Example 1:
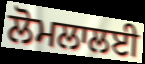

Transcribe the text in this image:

ਲੋਮਲਾਲਈ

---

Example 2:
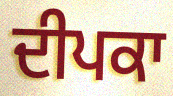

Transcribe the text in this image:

ਦੀਪਕਾ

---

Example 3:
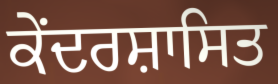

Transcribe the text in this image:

ਕੇਂਦਰਸ਼ਾਸਿਤ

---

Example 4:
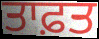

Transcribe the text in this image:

ਤਾਫ਼ਤ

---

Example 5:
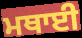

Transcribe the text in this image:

ਮਥਾਈ